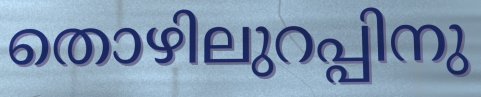
തൊഴിലുറപ്പിനു